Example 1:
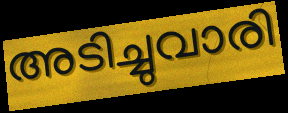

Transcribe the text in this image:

അടിച്ചുവാരി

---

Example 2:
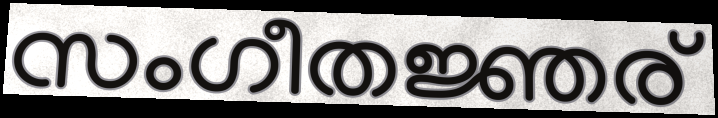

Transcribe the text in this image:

സംഗീതജ്ഞര്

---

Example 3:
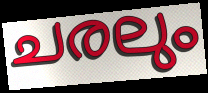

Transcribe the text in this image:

ചരലും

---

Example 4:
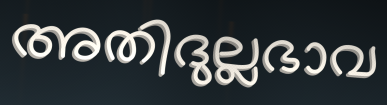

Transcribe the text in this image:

അതിദുല്ലഭാവ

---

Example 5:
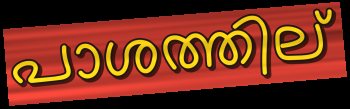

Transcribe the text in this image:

പാശത്തില്